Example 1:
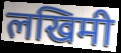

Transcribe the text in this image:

लखिमी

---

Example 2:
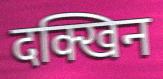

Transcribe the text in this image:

दक्खिन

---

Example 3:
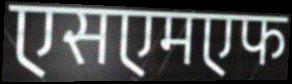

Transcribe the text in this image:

एसएमएफ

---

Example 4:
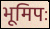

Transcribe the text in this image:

भूमिपः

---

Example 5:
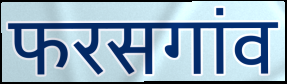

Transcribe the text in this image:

फरसगांव